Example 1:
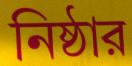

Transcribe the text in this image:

নিষ্ঠার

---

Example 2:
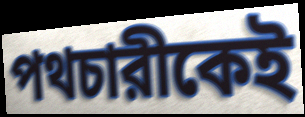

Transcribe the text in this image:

পথচারীকেই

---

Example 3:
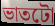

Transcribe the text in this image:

ভাতটো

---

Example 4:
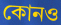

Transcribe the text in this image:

কোনও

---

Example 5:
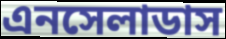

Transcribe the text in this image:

এনসেলাডাস